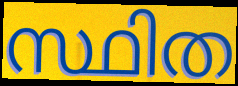
സ്ഥിത